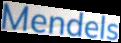
Mendels